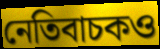
নেতিবাচকও